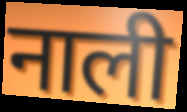
नाली